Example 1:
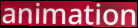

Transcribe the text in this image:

animation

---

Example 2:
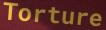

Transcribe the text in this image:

Torture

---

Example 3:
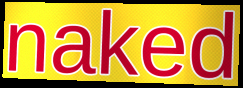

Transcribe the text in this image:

naked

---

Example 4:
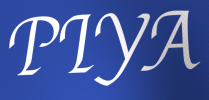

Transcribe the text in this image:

PIYA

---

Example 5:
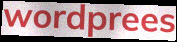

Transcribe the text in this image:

wordprees